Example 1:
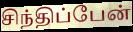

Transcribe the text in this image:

சிந்திப்பேன்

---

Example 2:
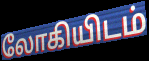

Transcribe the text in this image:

லோகியிடம்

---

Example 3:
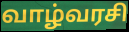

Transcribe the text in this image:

வாழ்வரசி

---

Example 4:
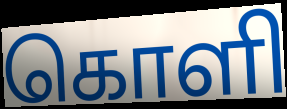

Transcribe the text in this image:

கொளி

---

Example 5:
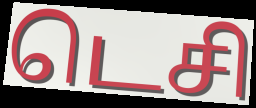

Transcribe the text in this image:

டெசி